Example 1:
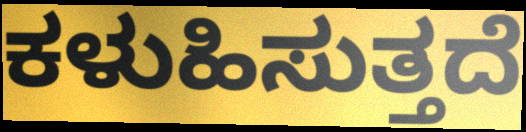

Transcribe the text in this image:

ಕಳುಹಿಸುತ್ತದೆ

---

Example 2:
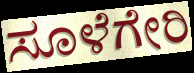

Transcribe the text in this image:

ಸೂಳೆಗೇರಿ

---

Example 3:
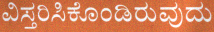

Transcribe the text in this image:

ವಿಸ್ತರಿಸಿಕೊಂಡಿರುವುದು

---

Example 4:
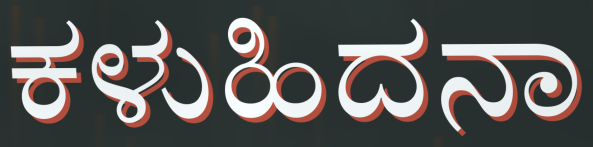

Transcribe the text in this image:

ಕಳುಹಿದನಾ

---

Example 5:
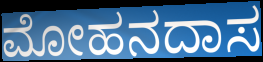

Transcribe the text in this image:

ಮೋಹನದಾಸ